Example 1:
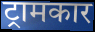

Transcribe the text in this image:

ट्रामकार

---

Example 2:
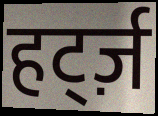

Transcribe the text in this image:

हर्ट्ज़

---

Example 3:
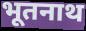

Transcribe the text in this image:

भूतनाथ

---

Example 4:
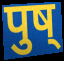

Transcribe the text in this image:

पुष्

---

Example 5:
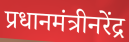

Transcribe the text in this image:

प्रधानमंत्रीनरेंद्र